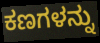
ಕಣಗಳನ್ನು